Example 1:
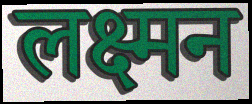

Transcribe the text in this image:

लक्ष्मन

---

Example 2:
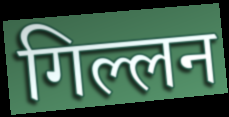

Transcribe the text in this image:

गिल्लन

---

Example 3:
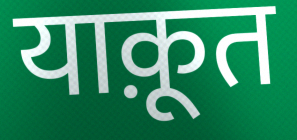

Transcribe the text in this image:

याक़ूत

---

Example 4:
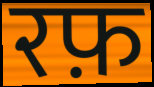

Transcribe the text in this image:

रफ़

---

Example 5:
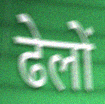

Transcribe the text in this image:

ढेलों